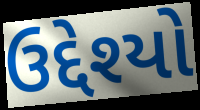
ઉદ્દેશ્યો